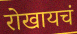
रोखायचं